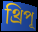
থ্রিপূ